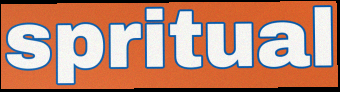
spritual